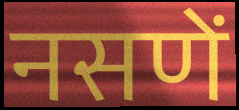
नसणें